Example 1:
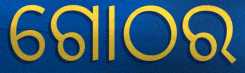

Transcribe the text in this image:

ଗୋଠର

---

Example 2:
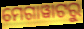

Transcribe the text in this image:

ମେଗାୱାଟରୁ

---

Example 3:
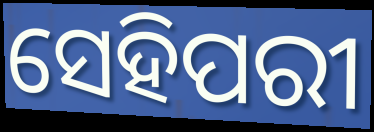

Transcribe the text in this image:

ସେହିପରୀ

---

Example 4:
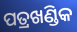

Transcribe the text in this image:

ପତ୍ରଖଣ୍ଡିକ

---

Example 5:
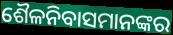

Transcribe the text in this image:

ଶୈଳନିବାସମାନଙ୍କର